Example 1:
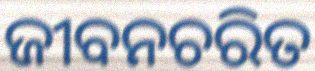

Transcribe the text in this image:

ଜୀବନଚରିତ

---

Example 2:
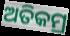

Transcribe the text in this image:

ଅତିକମ୍ର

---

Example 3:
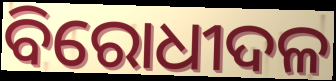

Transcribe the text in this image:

ବିରୋଧୀଦଳ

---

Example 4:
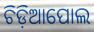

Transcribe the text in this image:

ଚିଡ଼ିଆପୋଲ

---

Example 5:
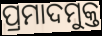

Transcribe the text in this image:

ପ୍ରମାଦମୁକ୍ତ